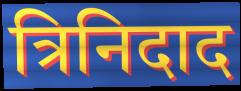
त्रिनिदाद